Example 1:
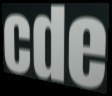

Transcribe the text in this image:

cde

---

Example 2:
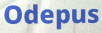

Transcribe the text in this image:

Odepus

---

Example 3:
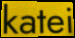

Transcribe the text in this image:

katei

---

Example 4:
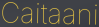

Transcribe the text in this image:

Caitaani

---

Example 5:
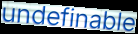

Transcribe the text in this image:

undefinable